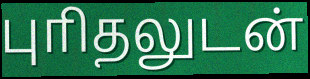
புரிதலுடன்